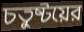
চতুষ্টয়ের